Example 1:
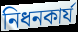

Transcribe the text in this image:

নিধনকার্য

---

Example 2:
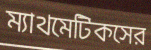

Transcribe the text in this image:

ম্যাথমেটিকসের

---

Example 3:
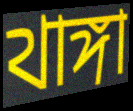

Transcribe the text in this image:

থাঙ্গা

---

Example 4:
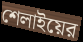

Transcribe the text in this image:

শেলাইয়ের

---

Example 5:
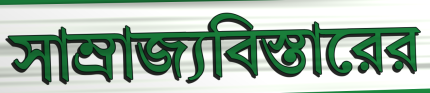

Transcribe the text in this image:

সাম্রাজ্যবিস্তারের